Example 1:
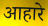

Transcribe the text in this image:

आहारे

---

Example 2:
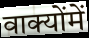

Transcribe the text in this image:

वाक्योंमें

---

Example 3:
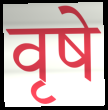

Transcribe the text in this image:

वृषे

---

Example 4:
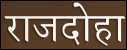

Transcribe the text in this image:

राजदोहा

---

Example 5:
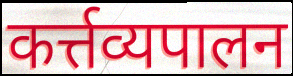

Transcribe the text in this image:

कर्त्तव्यपालन